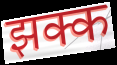
झक्क